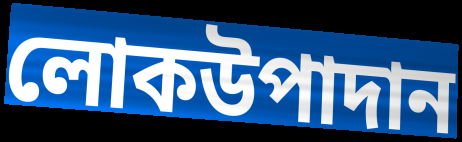
লোকউপাদান